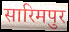
सारिमपुर